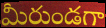
మీరుండగా